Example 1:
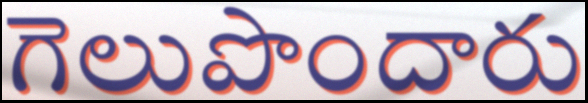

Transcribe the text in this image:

గెలుపొందారు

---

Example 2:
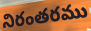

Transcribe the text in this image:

నిరంతరము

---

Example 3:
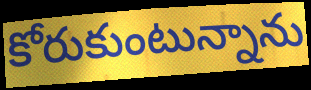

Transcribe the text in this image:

కోరుకుంటున్నాను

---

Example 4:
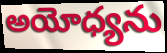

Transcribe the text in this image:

అయోధ్యను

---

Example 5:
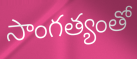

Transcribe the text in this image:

సాంగత్యంతో